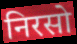
निरसो